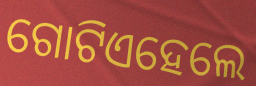
ଗୋଟିଏହେଲେ